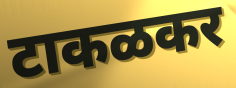
टाकळकर